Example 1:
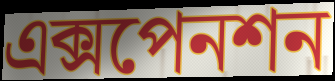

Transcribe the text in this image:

এক্সপেনশন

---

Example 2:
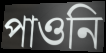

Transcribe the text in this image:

পাওনি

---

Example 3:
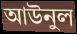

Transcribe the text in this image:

আউনুল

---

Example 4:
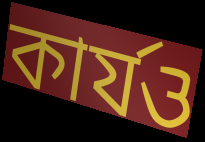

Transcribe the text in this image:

কার্যও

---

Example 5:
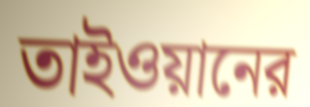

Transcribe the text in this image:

তাইওয়ানের